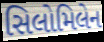
સિલોમિલેન